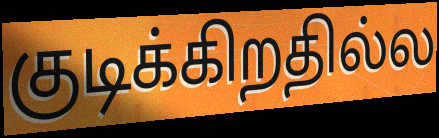
குடிக்கிறதில்ல